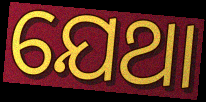
ଯେଥା